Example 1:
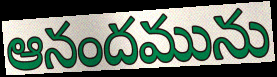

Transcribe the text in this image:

ఆనందమును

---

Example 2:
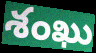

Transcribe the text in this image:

శంఖు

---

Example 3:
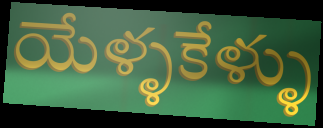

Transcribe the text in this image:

యేళ్ళకేళ్ళు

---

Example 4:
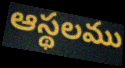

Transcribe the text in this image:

ఆస్థలము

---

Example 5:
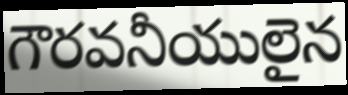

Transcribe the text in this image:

గౌరవనీయులైన